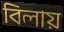
বিলায়